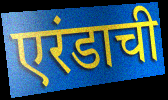
एरंडाची